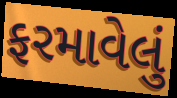
ફરમાવેલું